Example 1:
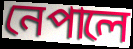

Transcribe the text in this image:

নেপালে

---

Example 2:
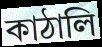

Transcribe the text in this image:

কাঠালি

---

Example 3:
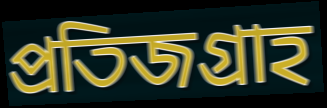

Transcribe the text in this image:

প্রতিজগ্রাহ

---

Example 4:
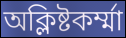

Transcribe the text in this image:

অক্লিষ্টকর্ম্মা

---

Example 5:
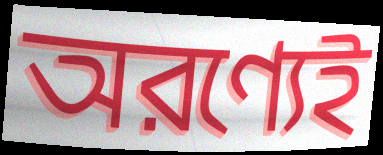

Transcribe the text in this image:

অরণ্যেই